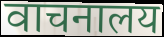
वाचनालय